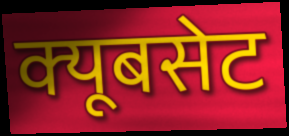
क्यूबसेट